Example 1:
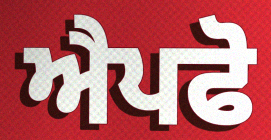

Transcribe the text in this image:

ਐਪਫੋ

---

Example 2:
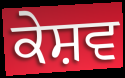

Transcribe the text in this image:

ਕੇਸ਼ਵ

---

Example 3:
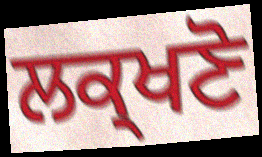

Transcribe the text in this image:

ਲਕ੍ਖਣੋ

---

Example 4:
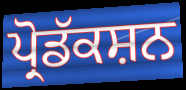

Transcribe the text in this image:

ਪ੍ਰੋਡੱਕਸ਼ਨ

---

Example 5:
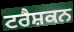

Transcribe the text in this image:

ਟਰੈਸ਼ਕਨ